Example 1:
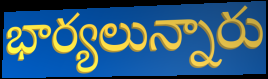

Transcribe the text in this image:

భార్యలున్నారు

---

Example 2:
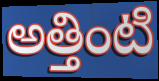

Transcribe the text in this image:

అత్తింటి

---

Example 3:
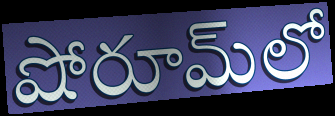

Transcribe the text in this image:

షోరూమ్‌లో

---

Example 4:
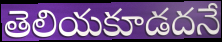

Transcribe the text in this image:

తెలియకూడదనే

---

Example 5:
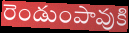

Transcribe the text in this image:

రెండుంపావుకి